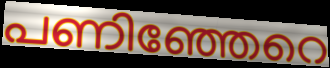
പണിഞ്ഞേറെ